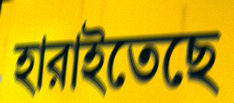
হারাইতেছে